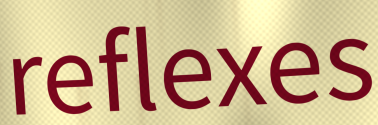
reflexes